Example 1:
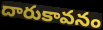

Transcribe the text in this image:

దారుకావనం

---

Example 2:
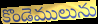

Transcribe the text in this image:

కొండెములును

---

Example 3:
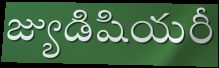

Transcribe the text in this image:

జ్యుడిషియరీ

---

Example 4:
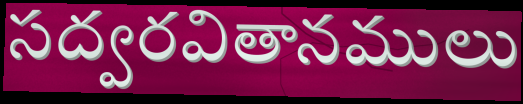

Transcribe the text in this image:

సద్వరవితానములు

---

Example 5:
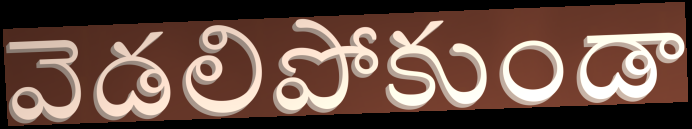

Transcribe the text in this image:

వెడలిపోకుండా